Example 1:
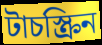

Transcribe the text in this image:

টাচস্ক্রিন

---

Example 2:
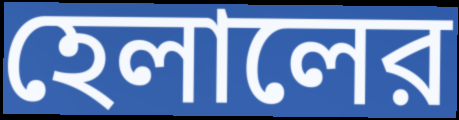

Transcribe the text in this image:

হেলালের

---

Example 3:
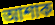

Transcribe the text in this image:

আশাক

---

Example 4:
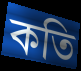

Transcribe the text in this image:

কতি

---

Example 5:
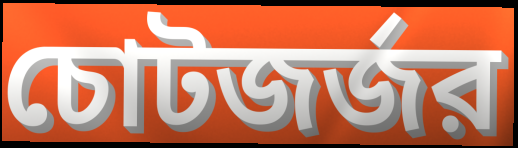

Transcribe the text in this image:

চোটজর্জর